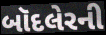
બૉદલેરની